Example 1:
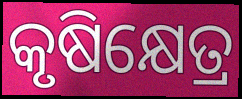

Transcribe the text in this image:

କୃଷିକ୍ଷେତ୍ର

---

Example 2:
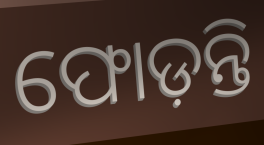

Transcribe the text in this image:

ଫୋଡ଼ନ୍ତି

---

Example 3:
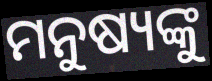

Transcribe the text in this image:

ମନୁଷ୍ୟଙ୍କୁ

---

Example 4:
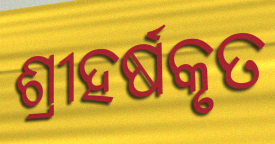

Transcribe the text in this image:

ଶ୍ରୀହର୍ଷକୃତ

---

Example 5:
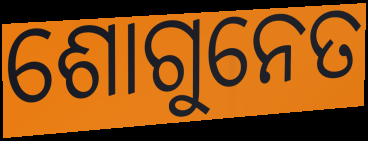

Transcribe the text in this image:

ଶୋଗୁନେତ